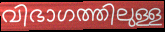
വിഭാഗത്തിലുള്ള